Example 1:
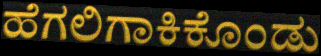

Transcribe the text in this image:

ಹೆಗಲಿಗಾಕಿಕೊಂಡು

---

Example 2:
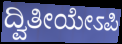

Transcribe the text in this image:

ದ್ವಿತೀಯೇಽಪಿ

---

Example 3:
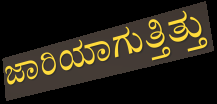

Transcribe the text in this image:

ಜಾರಿಯಾಗುತ್ತಿತ್ತು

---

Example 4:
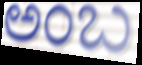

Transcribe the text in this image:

ಅಂಬ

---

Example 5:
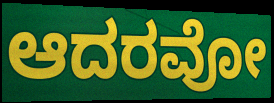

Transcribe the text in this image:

ಆದರವೋ